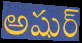
అషుర్